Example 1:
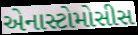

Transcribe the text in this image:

એનાસ્ટોમોસીસ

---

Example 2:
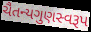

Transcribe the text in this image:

ચૈતન્યગુણસ્વરૂપ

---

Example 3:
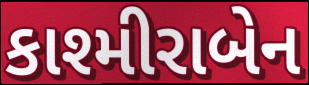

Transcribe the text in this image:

કાશ્મીરાબેન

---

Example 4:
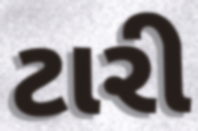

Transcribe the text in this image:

ટારી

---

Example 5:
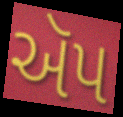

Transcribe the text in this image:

ઍપ